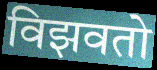
विझवतो